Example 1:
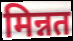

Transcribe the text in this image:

मिन्नत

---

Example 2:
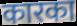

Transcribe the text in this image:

कारका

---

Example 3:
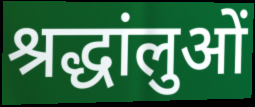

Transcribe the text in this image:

श्रद्धांलुओं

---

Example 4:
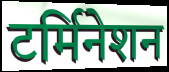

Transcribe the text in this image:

टर्मिनेशन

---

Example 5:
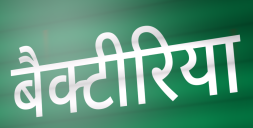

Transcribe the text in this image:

बैक्टीरिया